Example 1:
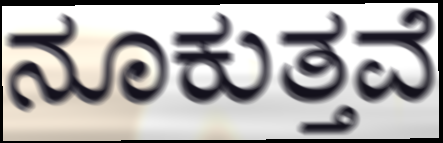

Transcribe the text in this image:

ನೂಕುತ್ತವೆ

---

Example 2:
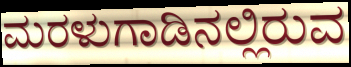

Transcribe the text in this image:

ಮರಳುಗಾಡಿನಲ್ಲಿರುವ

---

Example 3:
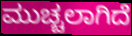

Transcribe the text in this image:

ಮುಚ್ಚಲಾಗಿದೆ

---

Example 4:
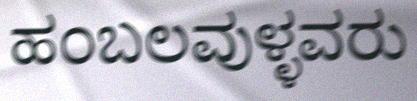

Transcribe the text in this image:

ಹಂಬಲವುಳ್ಳವರು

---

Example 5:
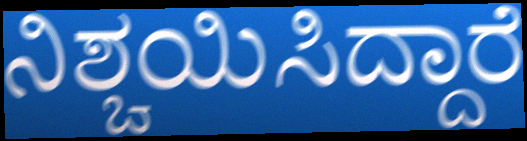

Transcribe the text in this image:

ನಿಶ್ಚಯಿಸಿದ್ದಾರೆ